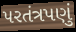
પરતંત્રપણું